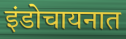
इंडोचायनात